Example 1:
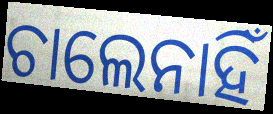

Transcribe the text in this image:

ଚାଲେନାହିଁ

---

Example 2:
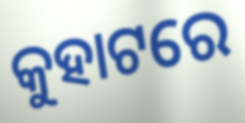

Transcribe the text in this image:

କୁହାଟରେ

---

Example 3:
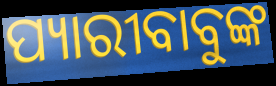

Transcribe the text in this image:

ପ୍ୟାରୀବାବୁଙ୍କ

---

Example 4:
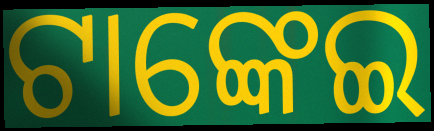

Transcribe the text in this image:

ଟାଙ୍କେଇ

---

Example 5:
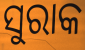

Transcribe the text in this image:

ସୁରାକ